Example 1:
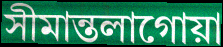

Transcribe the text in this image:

সীমান্তলাগোয়া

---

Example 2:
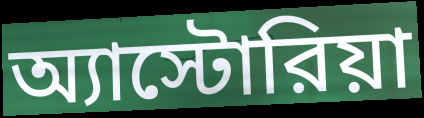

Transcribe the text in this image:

অ্যাস্টোরিয়া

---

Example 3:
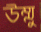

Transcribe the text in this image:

উম্মু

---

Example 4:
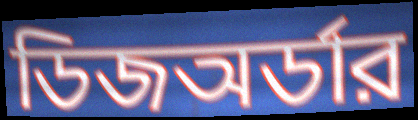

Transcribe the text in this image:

ডিজঅর্ডার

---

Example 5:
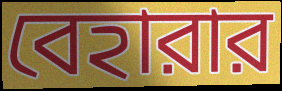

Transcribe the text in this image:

বেহারার